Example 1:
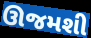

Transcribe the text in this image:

ઊજમશી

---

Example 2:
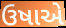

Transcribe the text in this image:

ઉષાએ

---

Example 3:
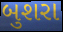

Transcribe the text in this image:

બુશરા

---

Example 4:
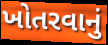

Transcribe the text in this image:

ખોતરવાનું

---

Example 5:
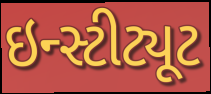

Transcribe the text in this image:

ઇન્સ્ટીટ્યૂટ